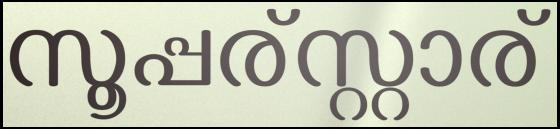
സൂപ്പര്സ്റ്റാര്